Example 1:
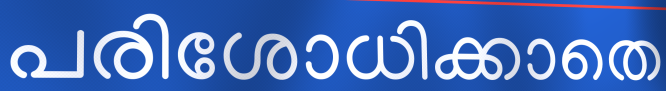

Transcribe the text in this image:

പരിശോധിക്കാതെ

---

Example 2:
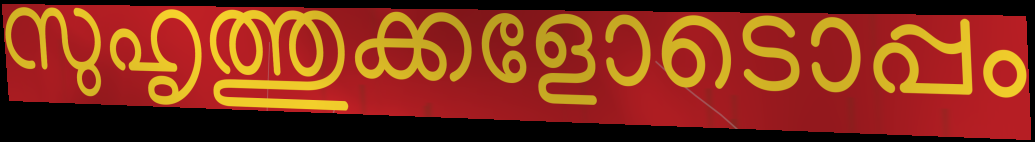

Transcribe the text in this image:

സുഹൃത്തുക്കളോടൊപ്പം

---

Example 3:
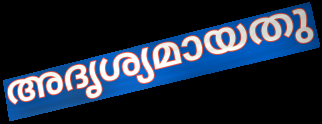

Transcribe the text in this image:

അദൃശ്യമായതു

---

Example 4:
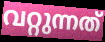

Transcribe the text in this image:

വറ്റുന്നത്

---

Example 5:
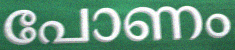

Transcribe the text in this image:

പോണം